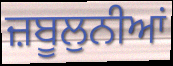
ਜ਼ਬੂਲੁਨੀਆਂ